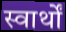
स्वार्थों